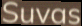
Suvas